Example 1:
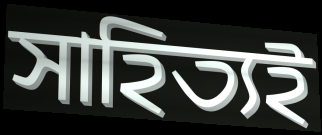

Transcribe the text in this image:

সাহিত্যই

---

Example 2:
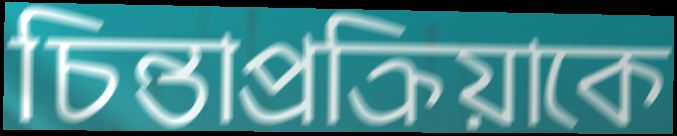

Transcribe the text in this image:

চিন্তাপ্রক্রিয়াকে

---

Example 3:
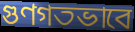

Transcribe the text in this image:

গুণগতভাবে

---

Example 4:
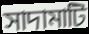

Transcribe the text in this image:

সাদামাটি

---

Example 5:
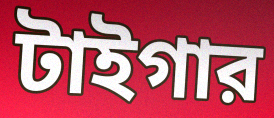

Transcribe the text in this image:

টাইগার